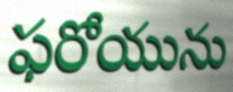
ఫరోయును